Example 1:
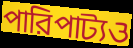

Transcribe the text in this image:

পারিপাট্যও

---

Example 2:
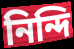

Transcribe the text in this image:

নিন্দি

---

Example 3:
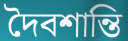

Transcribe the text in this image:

দৈবশান্তি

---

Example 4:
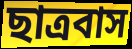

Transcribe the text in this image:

ছাত্রবাস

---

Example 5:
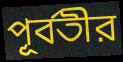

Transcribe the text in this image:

পূর্বতীর